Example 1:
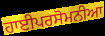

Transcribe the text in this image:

ਹਾਈਪਰਸੋਮਨੀਆ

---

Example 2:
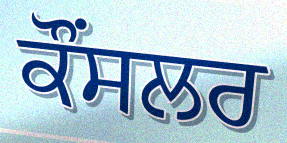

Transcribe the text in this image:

ਕੌੰਸਲਰ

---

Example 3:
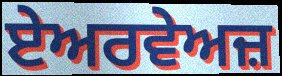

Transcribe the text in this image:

ਏਅਰਵੇਅਜ਼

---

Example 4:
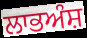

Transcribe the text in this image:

ਲਾਭਅੰਸ਼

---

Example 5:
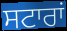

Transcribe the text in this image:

ਸਟਾਰਾਂ